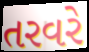
તરવરે